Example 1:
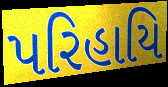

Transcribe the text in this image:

પરિહાયિ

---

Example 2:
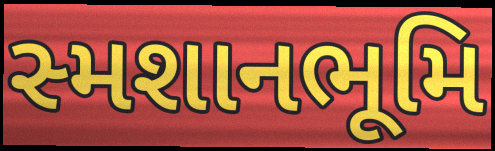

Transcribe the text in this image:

સ્મશાનભૂમિ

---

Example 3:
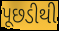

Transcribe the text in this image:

પૂછડીથી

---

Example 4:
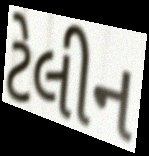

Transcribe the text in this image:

ટેલીન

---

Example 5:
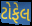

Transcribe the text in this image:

ટોફેલ